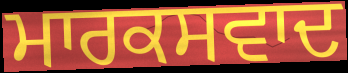
ਮਾਰਕਸਵਾਦ